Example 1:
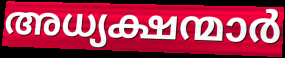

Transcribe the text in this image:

അധ്യക്ഷന്മാർ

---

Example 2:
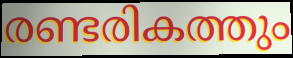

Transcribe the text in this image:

രണ്ടരികത്തും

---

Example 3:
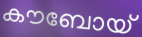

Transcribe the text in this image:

കൗബോയ്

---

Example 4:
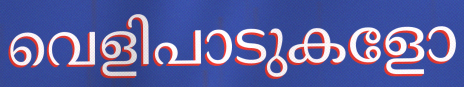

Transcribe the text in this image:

വെളിപാടുകളോ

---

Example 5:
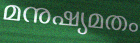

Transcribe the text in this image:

മനുഷ്യമതം